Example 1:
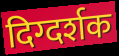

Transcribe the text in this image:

दिग्‍दर्शक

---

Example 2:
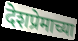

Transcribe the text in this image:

देशप्रेमाच्या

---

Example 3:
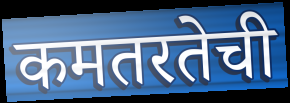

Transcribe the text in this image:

कमतरतेची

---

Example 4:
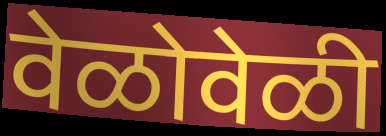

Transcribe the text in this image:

वेळोवेळी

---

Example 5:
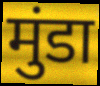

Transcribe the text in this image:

मुंडा